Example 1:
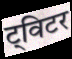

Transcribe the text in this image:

ट्‌विटर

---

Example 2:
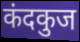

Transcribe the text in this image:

कंदकुज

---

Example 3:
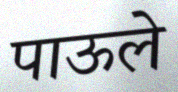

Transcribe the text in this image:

पाऊले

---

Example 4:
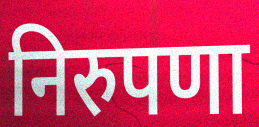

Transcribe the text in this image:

निरुपणा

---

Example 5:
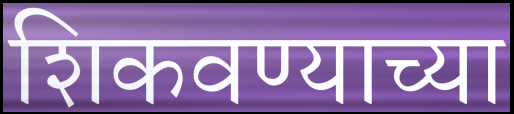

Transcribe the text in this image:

शिकवण्याच्या